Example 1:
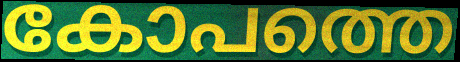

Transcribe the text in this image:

കോപത്തെ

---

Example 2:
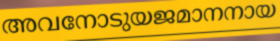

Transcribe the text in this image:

അവനോടുയജമാനനായ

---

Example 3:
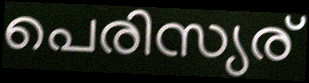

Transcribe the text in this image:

പെരിസ്യര്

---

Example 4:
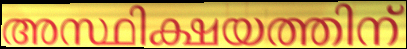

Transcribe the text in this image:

അസ്ഥിക്ഷയത്തിന്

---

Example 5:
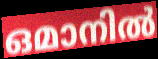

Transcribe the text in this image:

ഒമാനിൽ